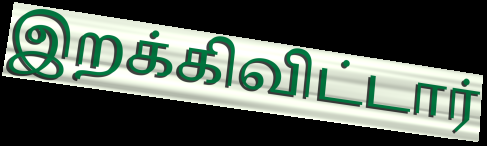
இறக்கிவிட்டார்